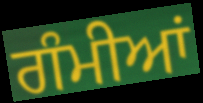
ਗੰਮੀਆਂ